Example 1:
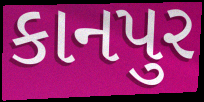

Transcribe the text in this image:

કાનપુર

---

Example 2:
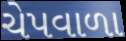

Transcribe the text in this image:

ચેપવાળા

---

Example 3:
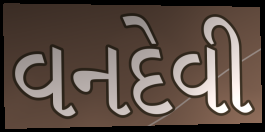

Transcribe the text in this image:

વનદેવી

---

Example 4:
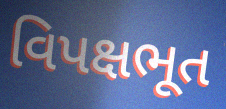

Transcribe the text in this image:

વિપક્ષભૂત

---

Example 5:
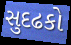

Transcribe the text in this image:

સુદઢકો